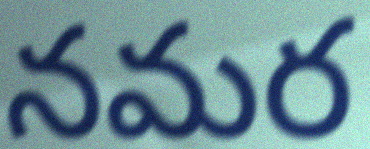
నమర